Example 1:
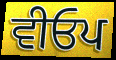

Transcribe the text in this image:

ਵੀਓਪ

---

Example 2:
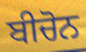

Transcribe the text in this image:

ਬੀਚੋਨ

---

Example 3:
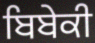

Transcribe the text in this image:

ਬਿਬੇਕੀ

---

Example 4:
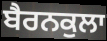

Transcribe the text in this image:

ਬੈਰਨਕੁਲਾ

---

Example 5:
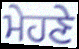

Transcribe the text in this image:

ਮੇਹਣੇ